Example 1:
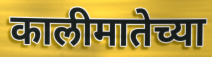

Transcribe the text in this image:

कालीमातेच्या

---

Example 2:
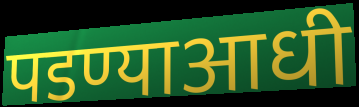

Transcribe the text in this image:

पडण्याआधी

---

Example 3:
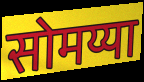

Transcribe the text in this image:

सोमय्या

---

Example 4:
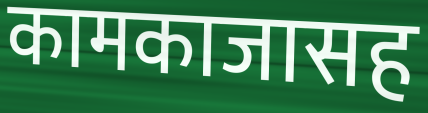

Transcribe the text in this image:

कामकाजासह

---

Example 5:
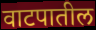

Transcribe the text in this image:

वाटपातील